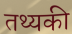
तथ्यकी